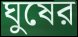
ঘুষের